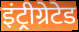
इंट्रीग्रेटेड